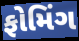
ફોમિંગ